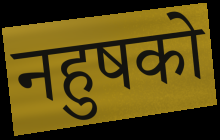
नहुषको